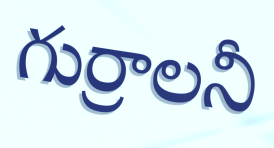
గుర్రాలనీ